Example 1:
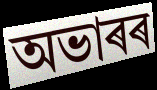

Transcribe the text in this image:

অভাৰৰ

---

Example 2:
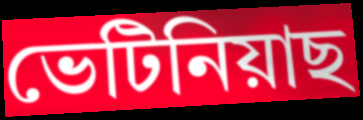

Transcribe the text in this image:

ভেটিনিয়াছ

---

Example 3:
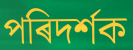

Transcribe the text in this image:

পৰিদৰ্শক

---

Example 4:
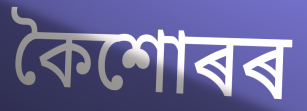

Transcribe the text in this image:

কৈশোৰৰ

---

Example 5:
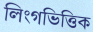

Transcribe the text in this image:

লিংগভিত্তিক